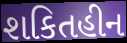
શકિતહીન